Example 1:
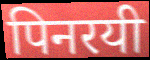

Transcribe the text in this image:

पिनरयी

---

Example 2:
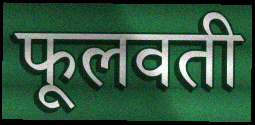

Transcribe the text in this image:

फूलवती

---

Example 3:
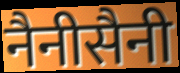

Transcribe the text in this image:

नैनीसैनी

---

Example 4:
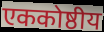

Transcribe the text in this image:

एककोष्ठीय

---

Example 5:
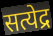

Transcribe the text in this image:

सत्येद्र